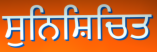
ਸੁਨਿਸ਼ਿਚਿਤ